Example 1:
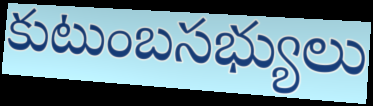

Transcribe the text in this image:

కుటుంబసభ్యులు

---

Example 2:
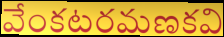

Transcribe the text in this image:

వేంకటరమణకవి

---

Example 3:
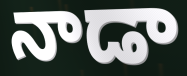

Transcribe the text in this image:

నాడా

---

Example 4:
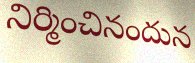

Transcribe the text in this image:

నిర్మించినందున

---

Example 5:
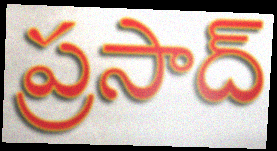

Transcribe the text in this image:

ప్రసాద్